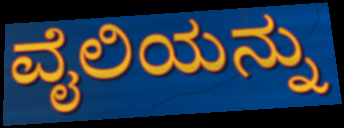
ವೈಲಿಯನ್ನು